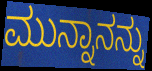
ಮುನ್ನಾನನ್ನು